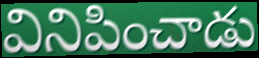
వినిపించాడు